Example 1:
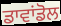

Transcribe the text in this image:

ਡਾਵਾਂਡੋਲ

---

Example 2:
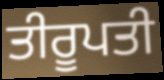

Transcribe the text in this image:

ਤੀਰੂਪਤੀ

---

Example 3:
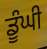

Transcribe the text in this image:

ਡੂੰਘੀ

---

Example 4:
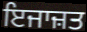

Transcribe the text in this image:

ਇਜਾਜ਼ਤ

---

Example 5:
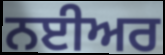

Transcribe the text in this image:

ਨਈਅਰ